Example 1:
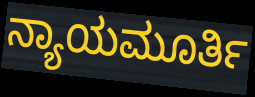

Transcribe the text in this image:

ನ್ಯಾಯಮೂರ್ತಿ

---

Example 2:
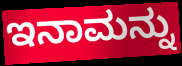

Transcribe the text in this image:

ಇನಾಮನ್ನು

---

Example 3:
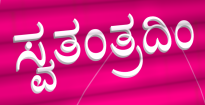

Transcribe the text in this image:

ಸ್ವತಂತ್ರದಿಂ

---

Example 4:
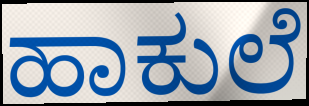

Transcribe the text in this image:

ಹಾಕುಲೆ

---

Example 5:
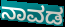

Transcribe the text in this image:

ನಾವಡ